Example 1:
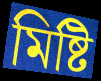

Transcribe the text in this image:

মিষ্টি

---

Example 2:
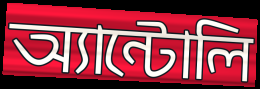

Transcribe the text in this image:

অ্যান্টোলি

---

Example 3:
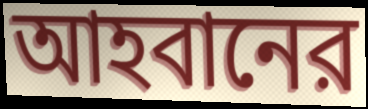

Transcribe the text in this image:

আহবানের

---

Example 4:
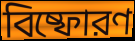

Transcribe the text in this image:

বিষ্ফোরণ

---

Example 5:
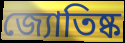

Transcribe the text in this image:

জ্যোতিষ্ক